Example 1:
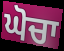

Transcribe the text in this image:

ਘੋਚਾ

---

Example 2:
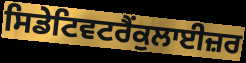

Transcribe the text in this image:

ਸਿਡੇਟਿਵਟਰੈਂਕੁਲਾਈਜ਼ਰ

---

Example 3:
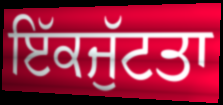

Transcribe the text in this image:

ਇੱਕਜੁੱਟਤਾ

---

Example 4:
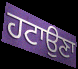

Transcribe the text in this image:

ਹਟਾਉਣਾ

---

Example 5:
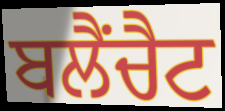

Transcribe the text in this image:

ਬਲੈਂਚੈਟ